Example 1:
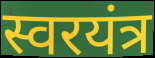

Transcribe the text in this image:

स्वरयंत्र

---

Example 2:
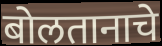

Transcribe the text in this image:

बोलतानाचे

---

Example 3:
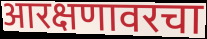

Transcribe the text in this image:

आरक्षणावरचा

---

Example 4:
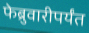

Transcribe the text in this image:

फेब्रुवारीपर्यंत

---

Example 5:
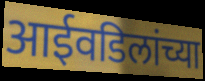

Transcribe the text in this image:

आईवडिलांच्या